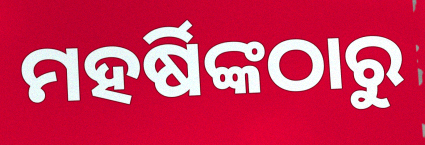
ମହର୍ଷିଙ୍କଠାରୁ